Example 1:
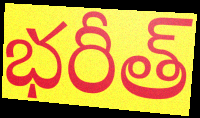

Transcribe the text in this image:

భరీత్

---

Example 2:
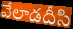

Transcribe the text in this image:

వేలాడదీసి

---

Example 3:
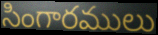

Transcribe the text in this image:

సింగారములు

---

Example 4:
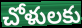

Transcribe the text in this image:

చోళులకు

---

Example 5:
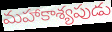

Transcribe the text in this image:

మహాకాశ్యపుడు